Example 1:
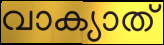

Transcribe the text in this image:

വാക്യാത്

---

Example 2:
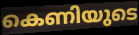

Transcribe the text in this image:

കെണിയുടെ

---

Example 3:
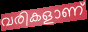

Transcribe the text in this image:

വരികളാണ്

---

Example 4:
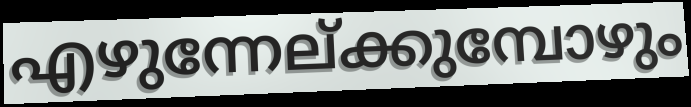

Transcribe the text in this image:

എഴുന്നേല്ക്കുമ്പോഴും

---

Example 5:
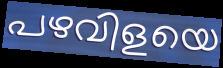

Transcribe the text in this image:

പഴവിളയെ